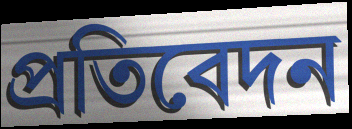
প্রতিবেদন